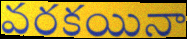
వరకయినా